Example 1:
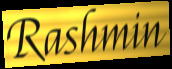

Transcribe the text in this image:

Rashmin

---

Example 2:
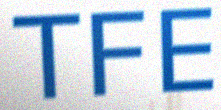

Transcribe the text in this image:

TFE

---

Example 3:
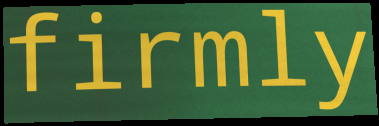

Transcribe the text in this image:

firmly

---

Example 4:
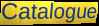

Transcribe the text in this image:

Catalogue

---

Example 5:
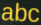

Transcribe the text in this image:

abc